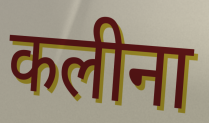
कलीना